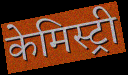
केमिस्ट्री